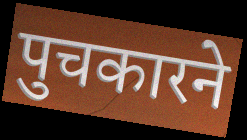
पुचकारने